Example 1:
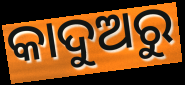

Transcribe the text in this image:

କାଦୁଅରୁ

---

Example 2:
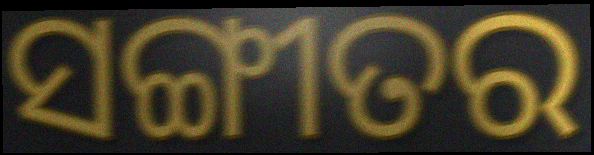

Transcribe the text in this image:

ସଙ୍ଗୀତର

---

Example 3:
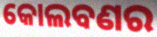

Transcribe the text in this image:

କୋଲବଣର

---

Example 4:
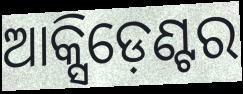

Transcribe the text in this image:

ଆକ୍ସିଡ଼େଣ୍ଟର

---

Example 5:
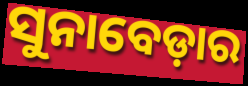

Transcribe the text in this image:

ସୁନାବେଡ଼ାର